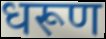
धरूण